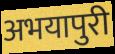
अभयापुरी